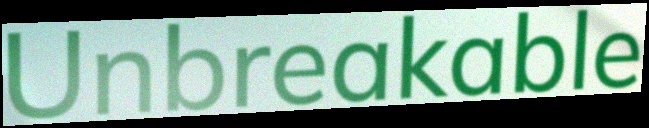
Unbreakable